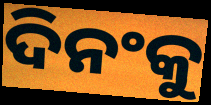
ଦିନଂକୁ